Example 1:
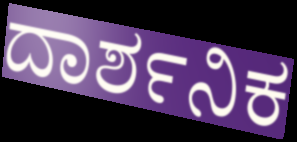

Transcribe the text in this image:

ದಾರ್ಶನಿಕ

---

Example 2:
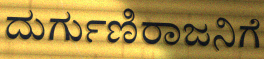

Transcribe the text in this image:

ದುರ್ಗುಣಿರಾಜನಿಗೆ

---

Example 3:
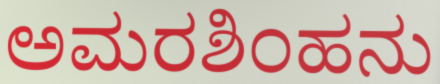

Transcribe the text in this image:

ಅಮರಶಿಂಹನು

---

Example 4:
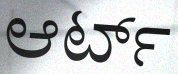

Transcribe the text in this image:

ಆರ್ಟ್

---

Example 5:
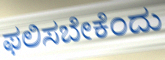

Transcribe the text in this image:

ಫಲಿಸಬೇಕೆಂದು